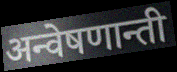
अन्वेषणान्ती